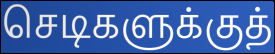
செடிகளுக்குத்